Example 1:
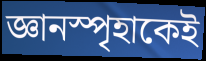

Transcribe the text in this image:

জ্ঞানস্পৃহাকেই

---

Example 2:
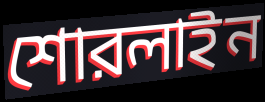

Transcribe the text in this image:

শোরলাইন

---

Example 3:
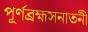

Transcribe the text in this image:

পূর্ণব্রহ্মসনাতনী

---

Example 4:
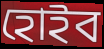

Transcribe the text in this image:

হোইব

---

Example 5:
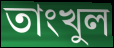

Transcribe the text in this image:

তাংখুল